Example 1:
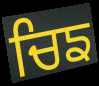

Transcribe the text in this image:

ਚਿਙ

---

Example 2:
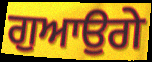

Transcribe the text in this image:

ਗੁਆਉਗੇ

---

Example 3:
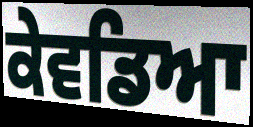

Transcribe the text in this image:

ਕੇਵਡਿਆ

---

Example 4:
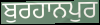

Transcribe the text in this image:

ਬੁਰਹਾਨਪੁਰ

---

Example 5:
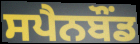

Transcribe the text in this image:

ਸਪੈਨਬੌਂਡ